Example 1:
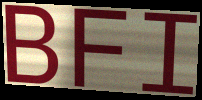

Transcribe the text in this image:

BFI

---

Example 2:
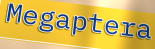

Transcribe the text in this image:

Megaptera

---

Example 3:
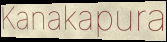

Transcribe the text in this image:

Kanakapura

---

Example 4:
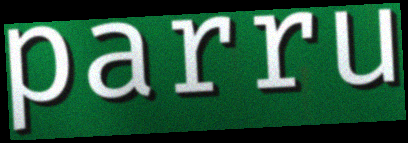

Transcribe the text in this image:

parru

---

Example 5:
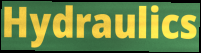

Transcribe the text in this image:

Hydraulics